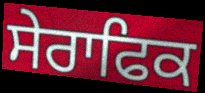
ਸੇਰਾਫਿਕ